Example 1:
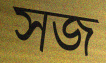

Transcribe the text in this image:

সজ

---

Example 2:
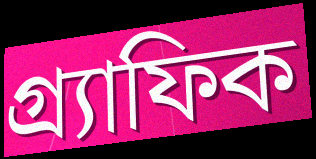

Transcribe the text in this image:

গ্র্যাফিক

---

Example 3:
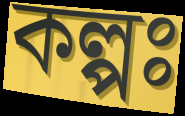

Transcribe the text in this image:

কল্পঃ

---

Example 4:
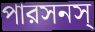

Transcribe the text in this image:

পারসনস্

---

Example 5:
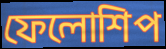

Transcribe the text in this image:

ফেলোশিপ